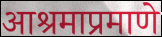
आश्रमाप्रमाणे